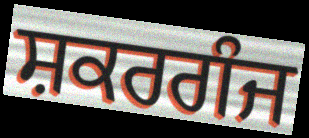
ਸ਼ਕਰਗੰਜ